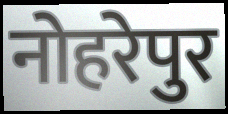
नोहरेपुर